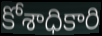
కోశాధికారి